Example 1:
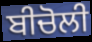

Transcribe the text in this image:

ਬੀਚੋਲੀ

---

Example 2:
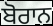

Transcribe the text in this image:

ਬੋਰਾਨ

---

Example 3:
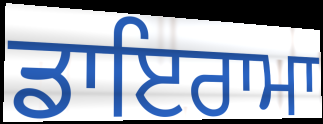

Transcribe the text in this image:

ਡਾਇਰਾਮਾ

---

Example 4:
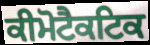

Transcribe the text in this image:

ਕੀਮੋਟੈਕਟਿਕ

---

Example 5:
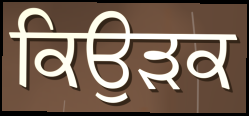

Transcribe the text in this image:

ਕਿਉੜਕ